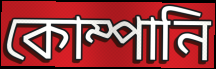
কোম্পানি